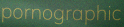
pornographic